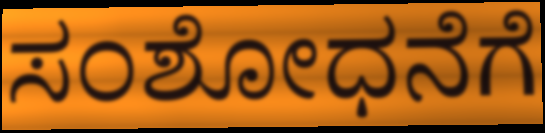
ಸಂಶೋಧನೆಗೆ